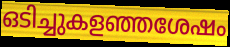
ഒടിച്ചുകളഞ്ഞശേഷം